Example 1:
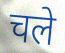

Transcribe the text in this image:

चले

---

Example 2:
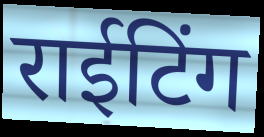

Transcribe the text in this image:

राईटिंग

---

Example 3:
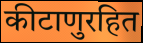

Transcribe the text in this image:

कीटाणुरहित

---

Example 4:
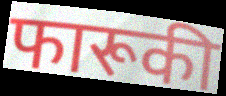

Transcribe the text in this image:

फारूकी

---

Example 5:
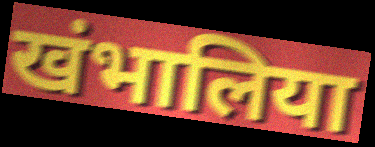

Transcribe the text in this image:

खंभालिया